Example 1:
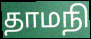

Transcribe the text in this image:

தாமநி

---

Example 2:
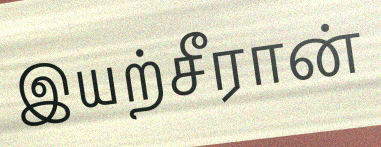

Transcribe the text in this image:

இயற்சீரான்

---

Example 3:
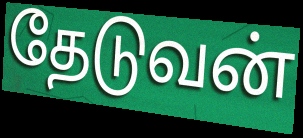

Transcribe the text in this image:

தேடுவன்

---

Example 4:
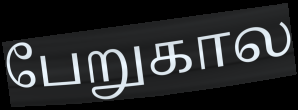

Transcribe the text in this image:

பேறுகால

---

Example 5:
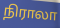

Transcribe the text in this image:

நிராலா